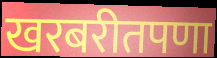
खरबरीतपणा